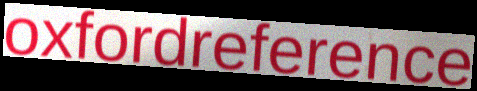
oxfordreference